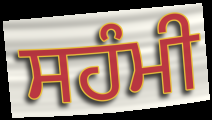
ਸਹੰਮੀ